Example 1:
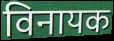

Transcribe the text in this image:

विनायक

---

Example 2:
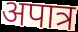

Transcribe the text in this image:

अपात्र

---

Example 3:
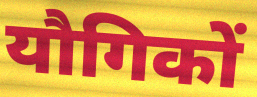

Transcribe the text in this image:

यौगिकों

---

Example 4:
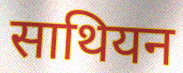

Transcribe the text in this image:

साथियन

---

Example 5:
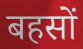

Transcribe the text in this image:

बहसों